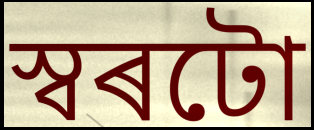
স্বৰটো